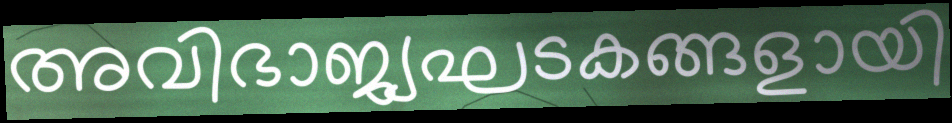
അവിഭാജ്യഘടകങ്ങളായി